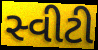
સ્વીટી